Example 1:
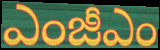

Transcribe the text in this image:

ఎంజీఎం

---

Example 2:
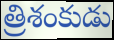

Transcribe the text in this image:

త్రిశంకుడు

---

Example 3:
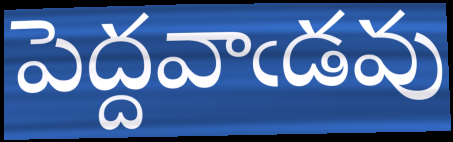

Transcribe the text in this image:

పెద్దవాఁడవు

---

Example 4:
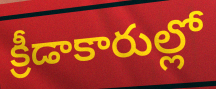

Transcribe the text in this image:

క్రీడాకారుల్లో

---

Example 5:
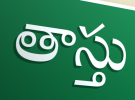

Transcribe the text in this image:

తాస్తు